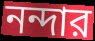
নন্দার